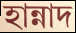
হান্নাদ